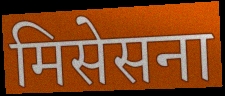
मिसेसना